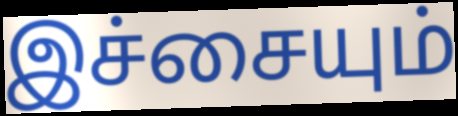
இச்சையும்